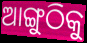
ଆଙ୍ଗୁଠିକୁ